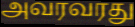
அவரவரது